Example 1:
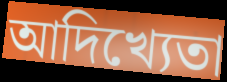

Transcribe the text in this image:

আদিখ্যেতা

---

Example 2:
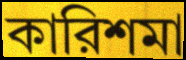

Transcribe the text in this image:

কারিশমা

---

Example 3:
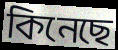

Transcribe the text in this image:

কিনেছে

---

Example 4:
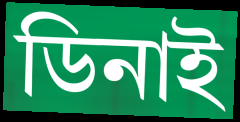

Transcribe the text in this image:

ডিনাই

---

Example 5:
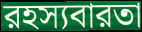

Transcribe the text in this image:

রহস্যবারতা